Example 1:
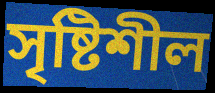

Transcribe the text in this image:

সৃষ্টিশীল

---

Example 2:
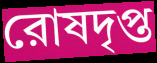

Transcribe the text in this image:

রোষদৃপ্ত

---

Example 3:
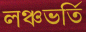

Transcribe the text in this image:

লঞ্চভর্তি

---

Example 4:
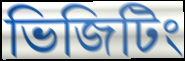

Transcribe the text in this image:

ভিজিটিং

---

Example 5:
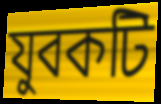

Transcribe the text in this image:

যুবকটি